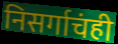
निसर्गाचंही